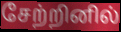
சேற்றினில்